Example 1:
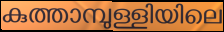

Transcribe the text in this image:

കുത്താമ്പുള്ളിയിലെ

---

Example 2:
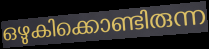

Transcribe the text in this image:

ഒഴുകിക്കൊണ്ടിരുന്ന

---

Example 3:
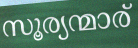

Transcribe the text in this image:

സൂര്യന്മാര്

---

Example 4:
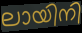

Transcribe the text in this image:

ലായിനി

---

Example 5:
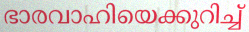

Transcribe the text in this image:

ഭാരവാഹിയെക്കുറിച്ച്